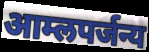
आम्लपर्जन्य